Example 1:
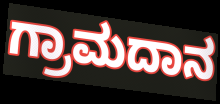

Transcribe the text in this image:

ಗ್ರಾಮದಾನ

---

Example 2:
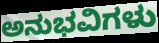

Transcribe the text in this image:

ಅನುಭವಿಗಳು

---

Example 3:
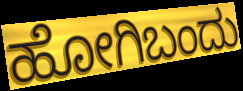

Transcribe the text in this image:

ಹೋಗಿಬಂದು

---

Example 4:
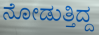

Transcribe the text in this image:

ನೋಡುತ್ತಿದ್ದ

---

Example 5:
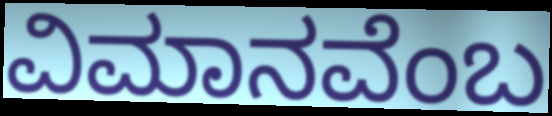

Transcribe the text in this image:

ವಿಮಾನವೆಂಬ